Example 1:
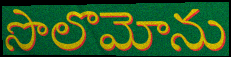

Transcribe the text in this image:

సొలొమోను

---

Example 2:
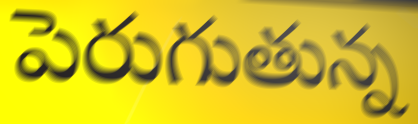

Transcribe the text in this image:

పెరుగుతున్న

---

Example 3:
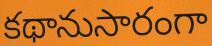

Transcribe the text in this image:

కథానుసారంగా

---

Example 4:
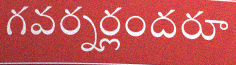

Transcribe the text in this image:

గవర్నర్లందరూ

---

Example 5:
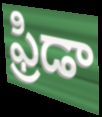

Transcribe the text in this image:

ఫ్రిడా